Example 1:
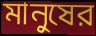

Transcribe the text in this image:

মানুষের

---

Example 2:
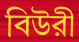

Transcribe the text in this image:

বিউরী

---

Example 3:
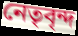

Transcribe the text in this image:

নেতৃবৃন্দ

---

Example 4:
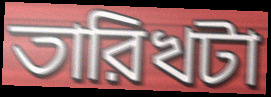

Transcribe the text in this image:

তারিখটা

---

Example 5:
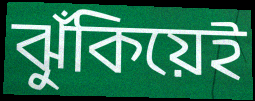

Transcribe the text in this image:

ঝুঁকিয়েই